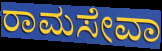
ರಾಮಸೇವಾ